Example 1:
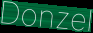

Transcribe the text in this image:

Donzel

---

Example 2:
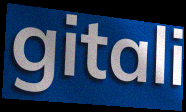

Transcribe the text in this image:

gitali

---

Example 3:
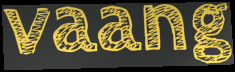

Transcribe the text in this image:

vaang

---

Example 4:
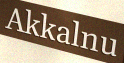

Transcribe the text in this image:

Akkalnu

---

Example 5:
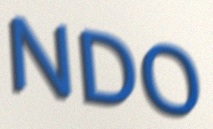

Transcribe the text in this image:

NDO